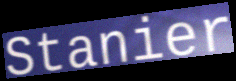
Stanier